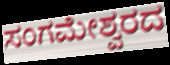
ಸಂಗಮೇಶ್ವರದ